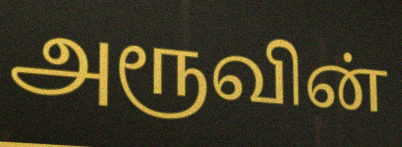
அரூவின்